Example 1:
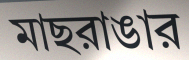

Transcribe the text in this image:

মাছরাঙার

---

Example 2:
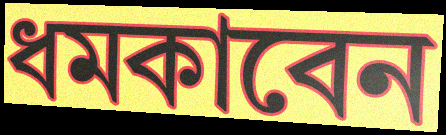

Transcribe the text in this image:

ধমকাবেন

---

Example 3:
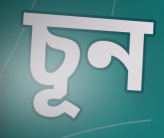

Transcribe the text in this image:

চূন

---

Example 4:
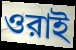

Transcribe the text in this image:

ওরাই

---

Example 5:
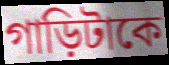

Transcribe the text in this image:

গাড়িটাকে